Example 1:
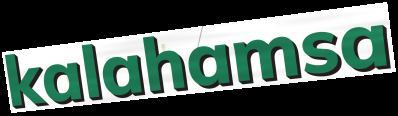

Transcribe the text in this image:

kalahamsa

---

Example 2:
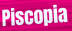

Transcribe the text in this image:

Piscopia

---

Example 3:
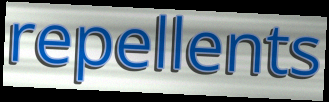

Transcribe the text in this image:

repellents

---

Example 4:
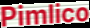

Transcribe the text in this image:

Pimlico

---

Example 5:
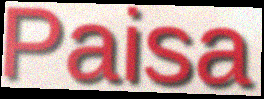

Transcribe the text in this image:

Paisa